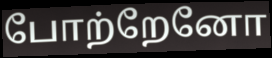
போற்றேனோ